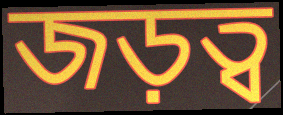
জড়ত্ব